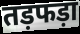
तड़फड़ा